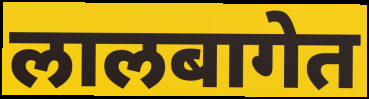
लालबागेत